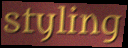
styling